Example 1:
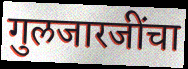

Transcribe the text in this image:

गुलजारजींचा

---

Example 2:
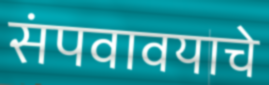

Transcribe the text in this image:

संपवावयाचे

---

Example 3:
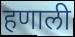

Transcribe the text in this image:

हणाली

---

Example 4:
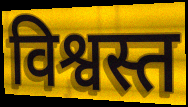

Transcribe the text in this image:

विश्वस्त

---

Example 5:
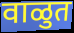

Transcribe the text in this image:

वाळुत